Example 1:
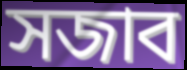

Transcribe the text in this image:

সজাব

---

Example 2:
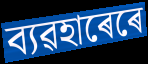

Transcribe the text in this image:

ব্যৱহাৰেৰে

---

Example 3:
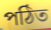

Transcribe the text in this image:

পঠিত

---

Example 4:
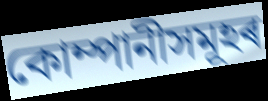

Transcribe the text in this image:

কোম্পানীসমূহৰ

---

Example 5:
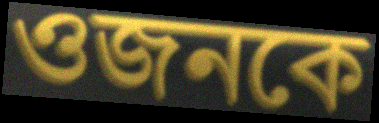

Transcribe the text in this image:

ওজনকে